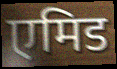
एमिड